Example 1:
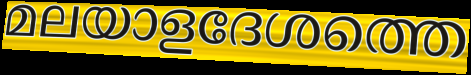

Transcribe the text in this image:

മലയാളദേശത്തെ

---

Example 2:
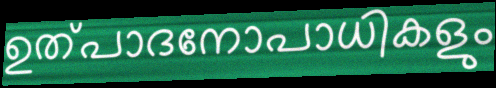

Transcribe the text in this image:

ഉത്പാദനോപാധികളും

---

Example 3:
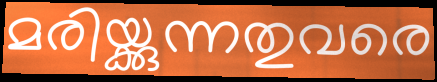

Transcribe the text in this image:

മരിയ്ക്കുന്നതുവരെ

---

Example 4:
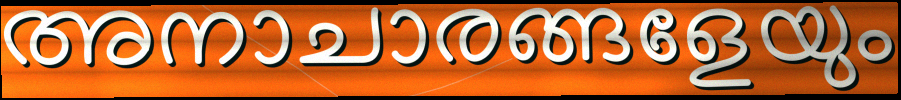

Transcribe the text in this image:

അനാചാരങ്ങളേയും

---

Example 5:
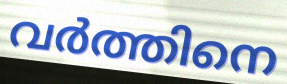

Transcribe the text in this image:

വർത്തിനെ